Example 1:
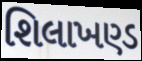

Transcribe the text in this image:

શિલાખણ્ડ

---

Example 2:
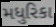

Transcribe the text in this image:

મધુરિકા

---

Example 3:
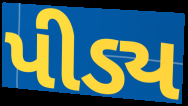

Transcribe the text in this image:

પીડ્ય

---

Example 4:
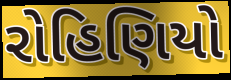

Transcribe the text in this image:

રોહિણિયો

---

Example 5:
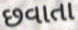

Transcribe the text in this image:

છવાતા